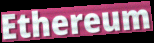
Ethereum